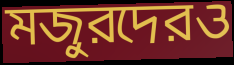
মজুরদেরও